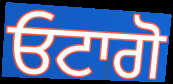
ਓਟਾਗੋ